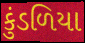
કુંડળિયા